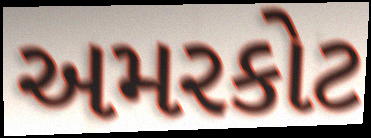
અમરકોટ